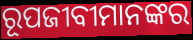
ରୂପଜୀବୀମାନଙ୍କର